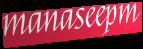
manaseepm